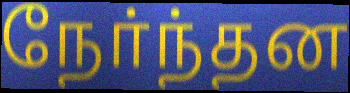
நேர்ந்தன